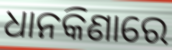
ଧାନକିଣାରେ